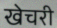
खेचरी